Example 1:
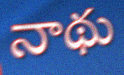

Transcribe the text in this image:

నాథు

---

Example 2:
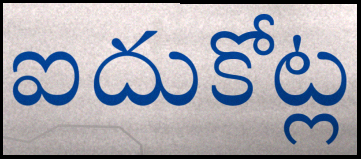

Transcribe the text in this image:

ఐదుకోట్ల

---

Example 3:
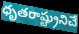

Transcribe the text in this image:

ధృతరాష్ట్రునిచే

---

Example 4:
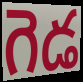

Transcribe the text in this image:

గెడ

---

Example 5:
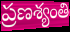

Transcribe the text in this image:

ప్రణశ్యంతి